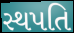
સ્થપતિ